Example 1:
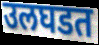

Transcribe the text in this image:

उलघडत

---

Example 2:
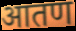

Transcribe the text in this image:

आतण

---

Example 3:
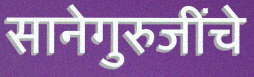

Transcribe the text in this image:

सानेगुरुजींचे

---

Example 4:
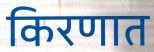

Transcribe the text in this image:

किरणात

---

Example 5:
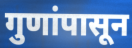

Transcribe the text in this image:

गुणांपासून